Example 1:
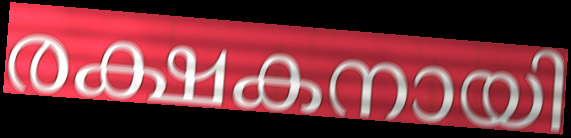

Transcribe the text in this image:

രക്ഷകനായി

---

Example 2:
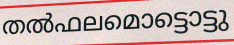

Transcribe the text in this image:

തൽഫലമൊട്ടൊട്ടു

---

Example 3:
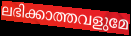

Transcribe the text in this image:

ലഭിക്കാത്തവളുമേ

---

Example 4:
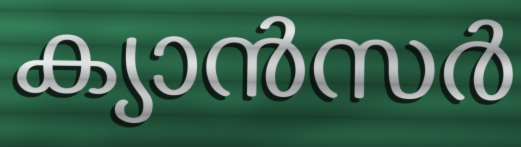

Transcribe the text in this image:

ക്യാൻസർ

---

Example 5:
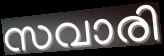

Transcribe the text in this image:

സവാരി